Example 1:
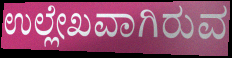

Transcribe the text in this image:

ಉಲ್ಲೇಖವಾಗಿರುವ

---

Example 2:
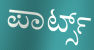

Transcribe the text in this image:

ಪಾರ್ಟ್ಸ್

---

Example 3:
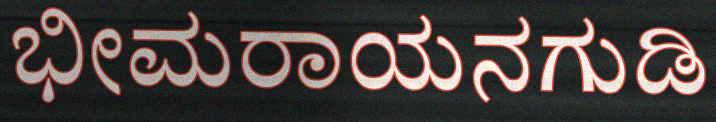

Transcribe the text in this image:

ಭೀಮರಾಯನಗುಡಿ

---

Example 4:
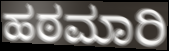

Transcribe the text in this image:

ಹಠಮಾರಿ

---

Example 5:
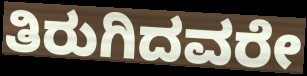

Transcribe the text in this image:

ತಿರುಗಿದವರೇ